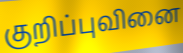
குறிப்புவினை